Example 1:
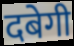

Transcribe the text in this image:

दबेगी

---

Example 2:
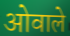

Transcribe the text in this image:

ओवाले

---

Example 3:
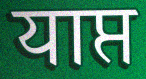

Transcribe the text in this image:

याप्त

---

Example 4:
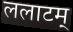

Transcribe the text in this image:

ललाटम्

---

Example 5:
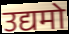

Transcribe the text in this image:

उद्यमो